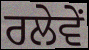
ਰਲੇਵੇਂ